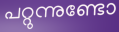
പറ്റുന്നുണ്ടോ